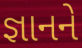
જ્ઞાનને